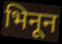
भिनून